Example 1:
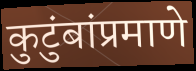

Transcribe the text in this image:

कुटुंबांप्रमाणे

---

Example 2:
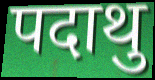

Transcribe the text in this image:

पदाथु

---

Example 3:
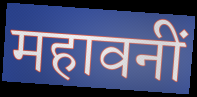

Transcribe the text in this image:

महावनीं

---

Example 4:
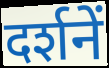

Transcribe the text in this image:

दर्शनें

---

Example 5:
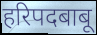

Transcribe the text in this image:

हरिपदबाबू